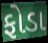
ફોડા